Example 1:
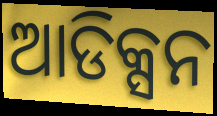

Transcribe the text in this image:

ଆଡିକ୍ସନ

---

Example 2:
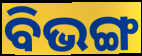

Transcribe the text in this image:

ବିଭଙ୍ଗ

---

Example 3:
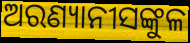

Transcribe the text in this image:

ଅରଣ୍ୟାନୀସଙ୍କୁଳ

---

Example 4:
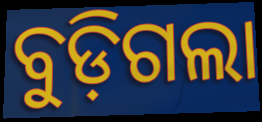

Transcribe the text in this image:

ବୁଡ଼ିଗଲା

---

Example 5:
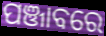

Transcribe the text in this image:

ପଞ୍ଜାବରେ